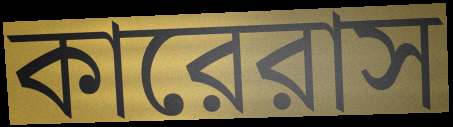
কারেরাস